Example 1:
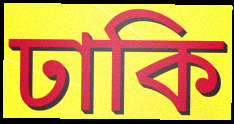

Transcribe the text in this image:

ঢাকি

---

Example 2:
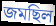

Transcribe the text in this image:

জমছিল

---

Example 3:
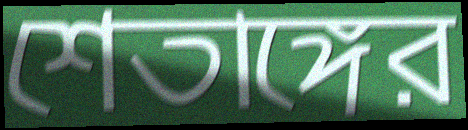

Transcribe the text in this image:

শেতাঙ্গের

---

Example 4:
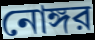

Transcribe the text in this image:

নোঙ্গর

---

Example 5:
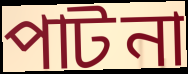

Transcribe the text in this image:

পাটনা